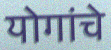
योगांचे